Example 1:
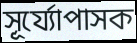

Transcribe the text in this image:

সূৰ্য্যোপাসক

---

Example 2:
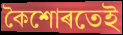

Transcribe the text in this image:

কৈশোৰতেই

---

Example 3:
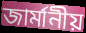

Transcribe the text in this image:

জাৰ্মানীয়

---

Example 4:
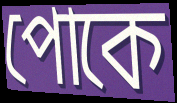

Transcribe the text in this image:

পোকে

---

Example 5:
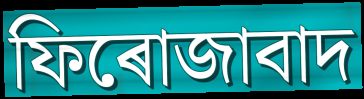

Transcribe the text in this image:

ফিৰোজাবাদ